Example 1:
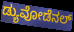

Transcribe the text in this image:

ಡ್ಯುವೋಡೆನಲ್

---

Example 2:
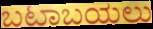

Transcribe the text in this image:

ಬಟಾಬಯಲು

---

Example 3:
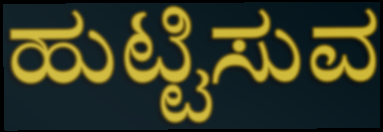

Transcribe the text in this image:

ಹುಟ್ಟಿಸುವ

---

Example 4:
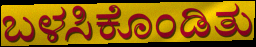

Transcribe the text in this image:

ಬಳಸಿಕೊಂಡಿತು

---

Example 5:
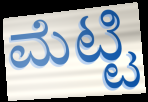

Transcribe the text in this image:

ಮೆಟ್ಟಿ